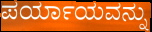
ಪರ್ಯಾಯವನ್ನು